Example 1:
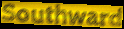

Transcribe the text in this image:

Southward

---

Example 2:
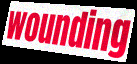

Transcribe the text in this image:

wounding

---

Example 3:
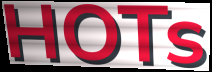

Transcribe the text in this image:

HOTs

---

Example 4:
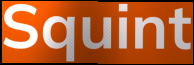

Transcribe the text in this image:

Squint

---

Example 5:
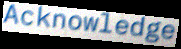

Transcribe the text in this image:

Acknowledge